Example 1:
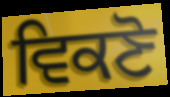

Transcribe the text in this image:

ਵਿਕਣੋ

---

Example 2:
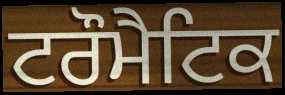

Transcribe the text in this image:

ਟਰੌਮੈਟਿਕ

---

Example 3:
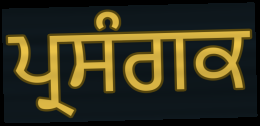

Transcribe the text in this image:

ਪ੍ਰਸੰਗਕ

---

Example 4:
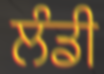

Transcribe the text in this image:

ਲੰਡੀ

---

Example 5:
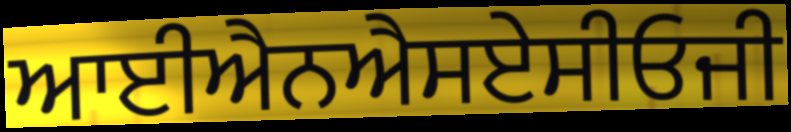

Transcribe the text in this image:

ਆਈਐਨਐਸਏਸੀਓਜੀ